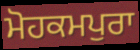
ਮੋਹਕਮਪੁਰਾ